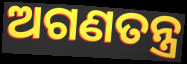
ଅଗଣତନ୍ତ୍ର